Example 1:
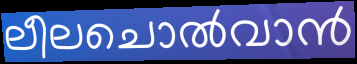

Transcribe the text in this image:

ലീലചൊൽവാൻ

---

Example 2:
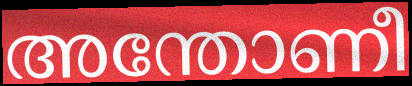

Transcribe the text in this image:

അന്തോണീ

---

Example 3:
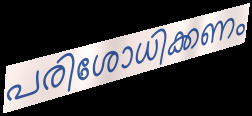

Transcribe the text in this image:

പരിശോധിക്കണം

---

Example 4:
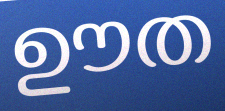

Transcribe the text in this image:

ഊത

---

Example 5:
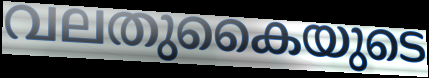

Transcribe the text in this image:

വലതുകൈയുടെ